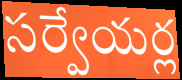
సర్వేయర్ల